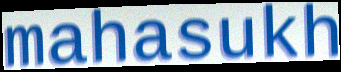
mahasukh